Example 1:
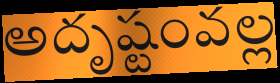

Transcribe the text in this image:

అదృష్టంవల్ల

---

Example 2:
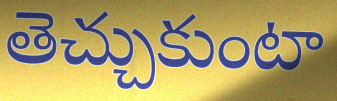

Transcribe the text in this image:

తెచ్చుకుంటా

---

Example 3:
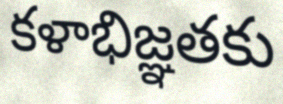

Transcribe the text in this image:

కళాభిజ్ఞతకు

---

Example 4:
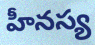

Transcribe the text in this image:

హీనస్య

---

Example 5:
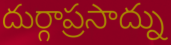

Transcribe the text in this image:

దుర్గాప్రసాద్ను